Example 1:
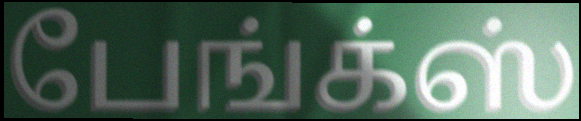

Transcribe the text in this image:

பேங்க்ஸ்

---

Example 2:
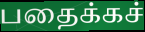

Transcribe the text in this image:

பதைக்கச்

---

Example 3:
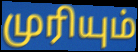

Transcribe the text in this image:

முரியும்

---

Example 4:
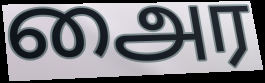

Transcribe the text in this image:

அைர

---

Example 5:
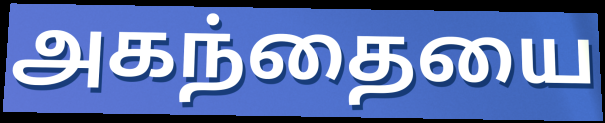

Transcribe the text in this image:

அகந்தையை